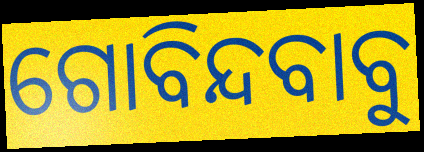
ଗୋବିନ୍ଦବାବୁ